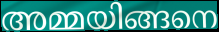
അമ്മയിങ്ങനെ